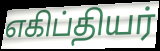
எகிப்தியர்